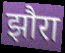
झौरा